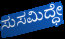
ಸುಸಮಿದ್ಧೇ